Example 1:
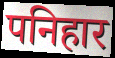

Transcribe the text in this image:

पनिहार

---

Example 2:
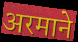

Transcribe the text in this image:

अरमाने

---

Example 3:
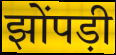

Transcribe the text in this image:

झोंपड़ी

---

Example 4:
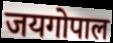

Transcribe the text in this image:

जयगोपाल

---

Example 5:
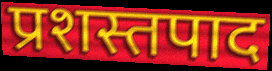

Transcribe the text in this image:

प्रशस्तपाद